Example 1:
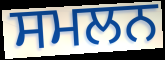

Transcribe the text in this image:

ਸਮਲਨ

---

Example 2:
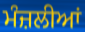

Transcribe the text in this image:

ਮੰਜ਼ਲੀਆਂ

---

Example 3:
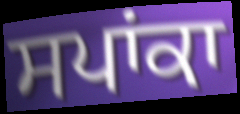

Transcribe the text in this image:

ਸਪਾਂਕਾ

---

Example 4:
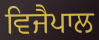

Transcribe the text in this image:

ਵਿਜੈਪਾਲ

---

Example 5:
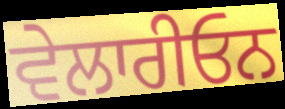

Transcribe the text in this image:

ਵੇਲਾਰੀਓਨ